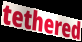
tethered